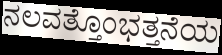
ನಲವತ್ತೊಂಭತ್ತನೆಯ